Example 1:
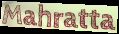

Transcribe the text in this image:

Mahratta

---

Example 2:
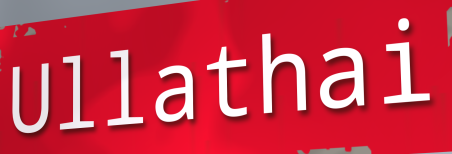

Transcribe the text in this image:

Ullathai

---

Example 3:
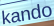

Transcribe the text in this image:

kando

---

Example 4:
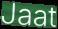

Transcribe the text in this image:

Jaat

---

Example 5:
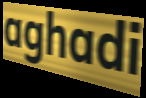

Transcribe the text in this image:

aghadi